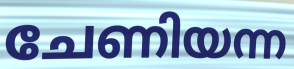
ചേണിയന്ന